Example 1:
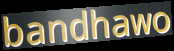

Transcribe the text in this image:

bandhawo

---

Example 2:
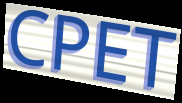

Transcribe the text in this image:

CPET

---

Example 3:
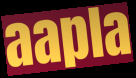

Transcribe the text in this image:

aapla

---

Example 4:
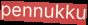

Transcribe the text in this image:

pennukku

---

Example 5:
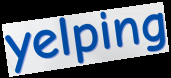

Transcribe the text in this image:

yelping